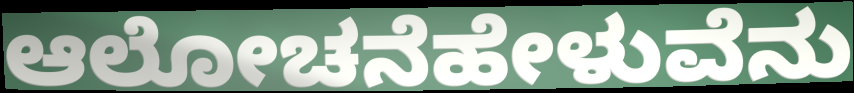
ಆಲೋಚನೆಹೇಳುವೆನು